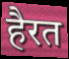
हैरत